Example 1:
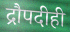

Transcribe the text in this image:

द्रौपदीही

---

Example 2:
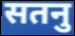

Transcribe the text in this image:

सतनु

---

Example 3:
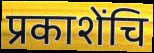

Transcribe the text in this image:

प्रकाशेंचि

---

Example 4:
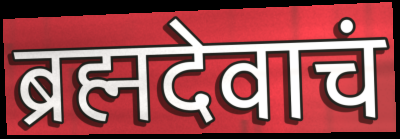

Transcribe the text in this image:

ब्रह्मदेवाचं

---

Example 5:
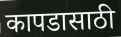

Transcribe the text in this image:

कापडासाठी